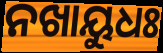
ନଖାୟୁଧଃ